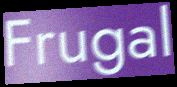
Frugal